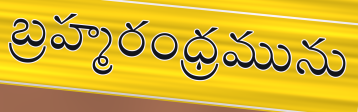
బ్రహ్మరంధ్రమును